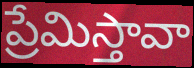
ప్రేమిస్తావా